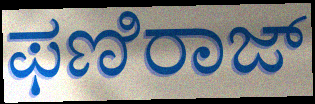
ಫಣಿರಾಜ್